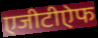
एजीटीऐफ